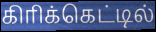
கிரிக்கெட்டில்